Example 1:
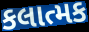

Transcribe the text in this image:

કલાત્મક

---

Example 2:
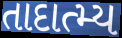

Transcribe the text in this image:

તાદાત્મ્ય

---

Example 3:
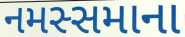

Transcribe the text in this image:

નમસ્સમાના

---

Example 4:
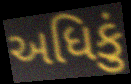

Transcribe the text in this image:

અધિકું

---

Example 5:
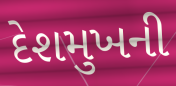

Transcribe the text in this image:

દેશમુખની